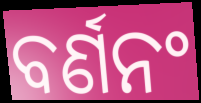
ବର୍ଣନଂ